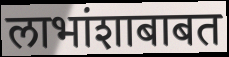
लाभांशाबाबत